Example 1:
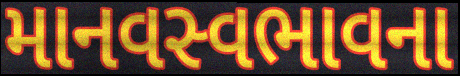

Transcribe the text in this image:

માનવસ્વભાવના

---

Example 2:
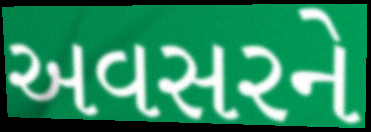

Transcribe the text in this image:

અવસરને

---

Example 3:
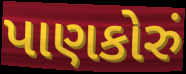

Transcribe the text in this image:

પાણકોરું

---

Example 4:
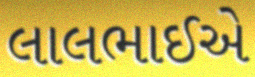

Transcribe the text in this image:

લાલભાઈએ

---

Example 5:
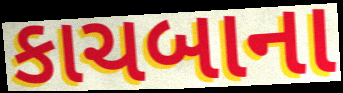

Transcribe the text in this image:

કાચબાના